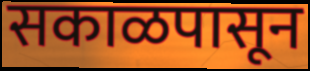
सकाळपासून